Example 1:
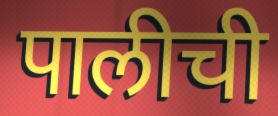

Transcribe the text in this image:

पालीची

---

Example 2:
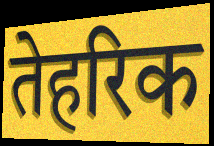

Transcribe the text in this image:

तेहरिक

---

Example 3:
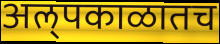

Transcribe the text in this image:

अल्पकाळातच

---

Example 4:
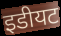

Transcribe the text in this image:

इडीयट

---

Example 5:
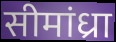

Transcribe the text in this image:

सीमांध्रा